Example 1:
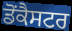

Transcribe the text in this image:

ਡੋਂਕੈਸਟਰ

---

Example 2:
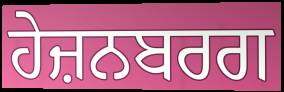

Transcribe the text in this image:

ਹੇਜ਼ਨਬਰਗ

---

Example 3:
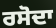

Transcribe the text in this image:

ਰਸੋਦਾ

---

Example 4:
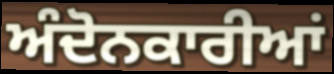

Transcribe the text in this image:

ਅੰਦੋਨਕਾਰੀਆਂ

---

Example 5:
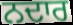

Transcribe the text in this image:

ਨਦਾਰ